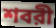
শবরী